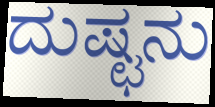
ದುಷ್ಟನು